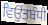
ਵਿਉਂਤਬੰਧੀ